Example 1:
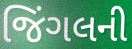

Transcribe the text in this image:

જિંગલની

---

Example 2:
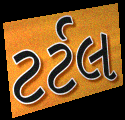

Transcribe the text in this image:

ટર્ટલ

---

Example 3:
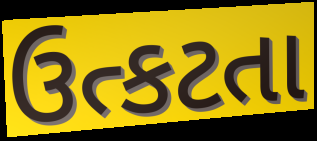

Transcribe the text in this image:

ઉત્કટતા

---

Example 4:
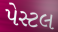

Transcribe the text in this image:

પેસ્ટલ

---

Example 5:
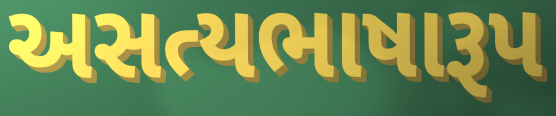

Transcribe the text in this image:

અસત્યભાષારૂપ